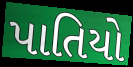
પાતિયો